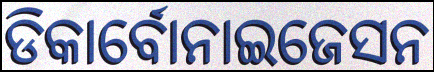
ଡିକାର୍ବୋନାଇଜେସନ